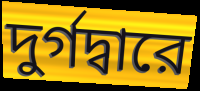
দুর্গদ্বারে